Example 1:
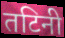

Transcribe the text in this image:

तटिनी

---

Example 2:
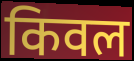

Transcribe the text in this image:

किवल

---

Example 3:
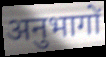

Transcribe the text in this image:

अनुभागों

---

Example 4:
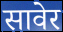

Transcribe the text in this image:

सावेर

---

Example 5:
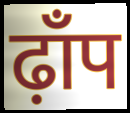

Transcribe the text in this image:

ढ़ाँप